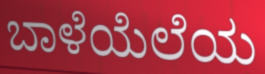
ಬಾಳೆಯೆಲೆಯ